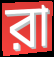
রা